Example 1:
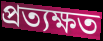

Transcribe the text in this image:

প্রত্যক্ষত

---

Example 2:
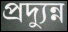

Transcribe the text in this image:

প্রদ্যুন্ন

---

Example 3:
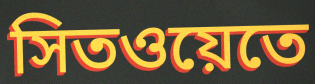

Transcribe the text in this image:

সিতওয়েতে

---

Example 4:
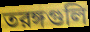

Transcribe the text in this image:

তরঙ্গগুলি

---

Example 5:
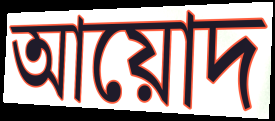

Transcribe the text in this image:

আয়োদ